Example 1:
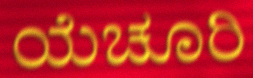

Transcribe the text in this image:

ಯೆಚೂರಿ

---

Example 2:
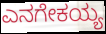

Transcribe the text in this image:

ಎನಗೇಕಯ್ಯ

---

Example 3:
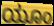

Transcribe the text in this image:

ಯೂಂ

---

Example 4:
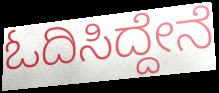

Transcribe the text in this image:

ಓದಿಸಿದ್ದೇನೆ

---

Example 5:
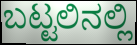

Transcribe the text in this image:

ಬಟ್ಟಲಿನಲ್ಲಿ